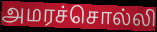
அமரச்சொல்லி